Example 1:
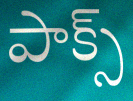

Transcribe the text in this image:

పాక్స్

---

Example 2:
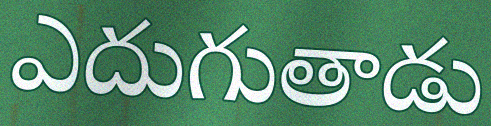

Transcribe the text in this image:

ఎదుగుతాడు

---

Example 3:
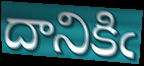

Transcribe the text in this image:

దానికిఁ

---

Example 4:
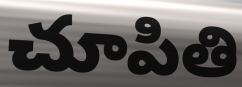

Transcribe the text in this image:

చూపితి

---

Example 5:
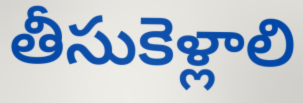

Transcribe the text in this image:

తీసుకెళ్లాలి